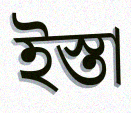
ইস্তা